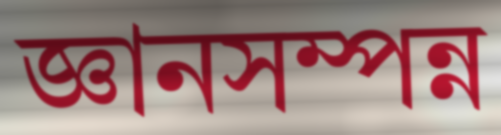
জ্ঞানসম্পন্ন